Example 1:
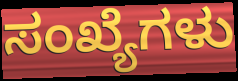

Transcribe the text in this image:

ಸಂಖ್ಯೆಗಳು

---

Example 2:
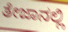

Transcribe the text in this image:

ತೇಜಾನಲ್ಲಿ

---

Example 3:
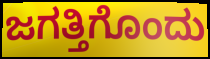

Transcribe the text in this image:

ಜಗತ್ತಿಗೊಂದು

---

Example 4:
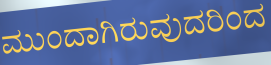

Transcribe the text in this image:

ಮುಂದಾಗಿರುವುದರಿಂದ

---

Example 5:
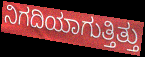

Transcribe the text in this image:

ನಿಗದಿಯಾಗುತ್ತಿತ್ತು